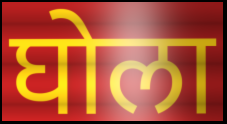
घोला